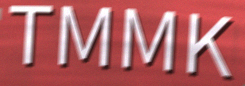
TMMK